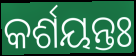
କର୍ଶୟନ୍ତଃ